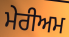
ਮੇਰੀਅਮ